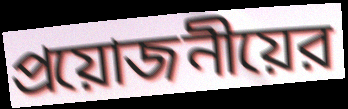
প্রয়োজনীয়ের